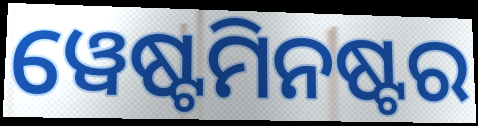
ୱେଷ୍ଟମିନଷ୍ଟର